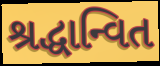
શ્રદ્ધાન્વિત